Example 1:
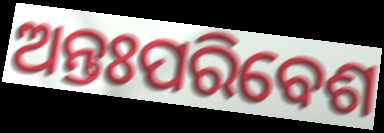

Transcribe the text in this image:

ଅନ୍ତଃପରିବେଶ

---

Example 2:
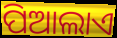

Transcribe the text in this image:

ପିଆଲାଏ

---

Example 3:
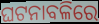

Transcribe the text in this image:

ଘଟନାବଳିରେ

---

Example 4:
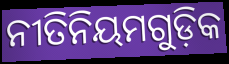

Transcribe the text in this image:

ନୀତିନିୟମଗୁଡ଼ିକ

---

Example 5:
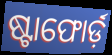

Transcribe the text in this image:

ଷ୍ଟାଫୋର୍ଡ଼